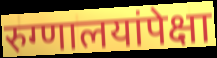
रुग्णालयांपेक्षा